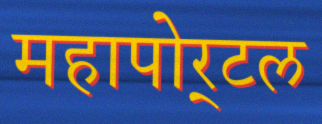
महापोर्टल